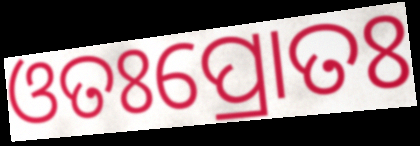
ଓତଃପ୍ରୋତଃ